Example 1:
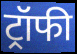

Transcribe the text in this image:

ट्रॉफी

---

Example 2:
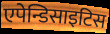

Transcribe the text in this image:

एपेन्डिसाइटिस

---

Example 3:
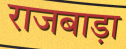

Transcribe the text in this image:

राजबाड़ा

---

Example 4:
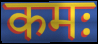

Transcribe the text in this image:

कमः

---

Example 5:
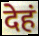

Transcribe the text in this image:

देहं